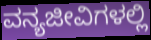
ವನ್ಯಜೀವಿಗಳಲ್ಲಿ